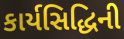
કાર્યસિદ્ધિની